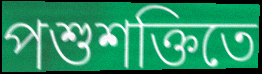
পশুশক্তিতে